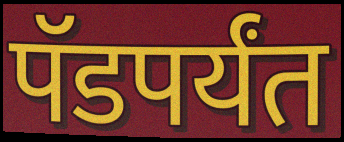
पॅडपर्यंत